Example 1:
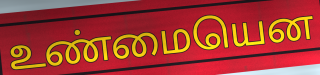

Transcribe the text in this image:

உண்மையென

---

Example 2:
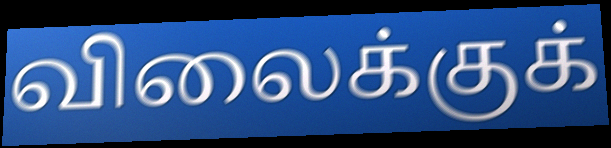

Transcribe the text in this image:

விலைக்குக்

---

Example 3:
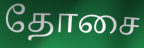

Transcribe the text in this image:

தோசை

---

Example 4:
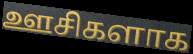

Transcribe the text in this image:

ஊசிகளாக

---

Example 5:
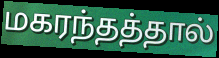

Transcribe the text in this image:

மகரந்தத்தால்